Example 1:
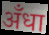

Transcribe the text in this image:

अँधा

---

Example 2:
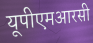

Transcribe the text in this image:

यूपीएमआरसी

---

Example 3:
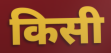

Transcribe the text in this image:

किसी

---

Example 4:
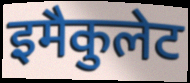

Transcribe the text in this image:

इमैकुलेट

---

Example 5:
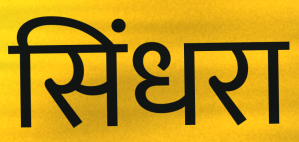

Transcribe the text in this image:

सिंधरा